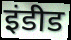
इंडीड